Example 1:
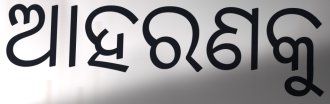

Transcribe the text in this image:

ଆହରଣକୁ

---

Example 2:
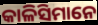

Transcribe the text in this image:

କାଳିସିମାନେ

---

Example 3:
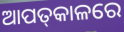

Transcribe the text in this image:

ଆପତ୍‌କାଳରେ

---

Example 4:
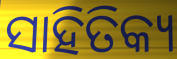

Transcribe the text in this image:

ସାହିତିକ୍ୟ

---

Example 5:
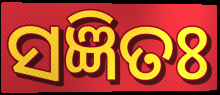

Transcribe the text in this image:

ସଜ୍ଞିତଃ